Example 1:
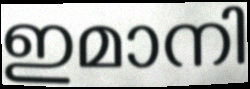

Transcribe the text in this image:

ഇമാനി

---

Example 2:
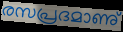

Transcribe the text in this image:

രസപ്രദമാണു്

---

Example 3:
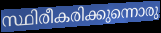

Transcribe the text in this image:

സ്ഥിരീകരിക്കുന്നൊരു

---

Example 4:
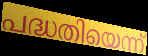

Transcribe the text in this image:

പദ്ധതിയെന്ന്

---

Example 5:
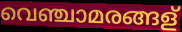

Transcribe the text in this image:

വെഞ്ചാമരങ്ങള്